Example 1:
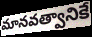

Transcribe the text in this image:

మానవత్వానికే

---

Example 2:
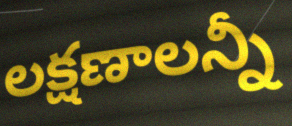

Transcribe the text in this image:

లక్షణాలన్నీ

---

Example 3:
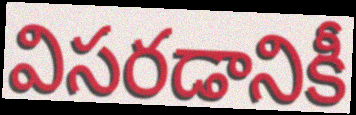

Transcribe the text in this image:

విసరడానికీ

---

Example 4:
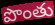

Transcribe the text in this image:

పొంతు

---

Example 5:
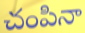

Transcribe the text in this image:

చంపినా